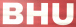
BHU